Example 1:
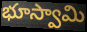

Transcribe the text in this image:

భూస్వామి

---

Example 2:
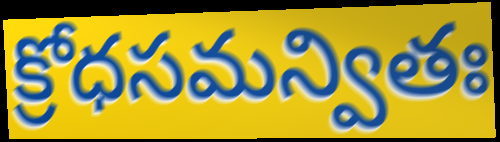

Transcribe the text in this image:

క్రోధసమన్వితః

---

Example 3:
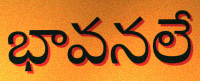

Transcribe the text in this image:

భావనలే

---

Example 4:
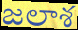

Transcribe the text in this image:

జలాశ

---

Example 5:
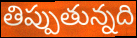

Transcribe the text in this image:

తిప్పుతున్నది